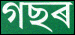
গছৰ